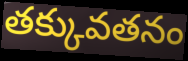
తక్కువతనం